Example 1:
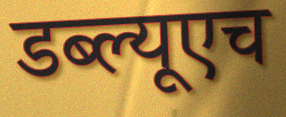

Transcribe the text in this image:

डब्ल्यूएच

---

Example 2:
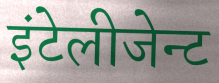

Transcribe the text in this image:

इंटेलीजेन्ट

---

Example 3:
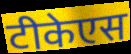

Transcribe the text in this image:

टीकेएस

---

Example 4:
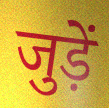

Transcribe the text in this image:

जुड़ें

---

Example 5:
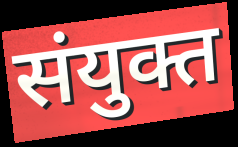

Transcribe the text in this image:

संयुक्त